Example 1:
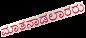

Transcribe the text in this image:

ಮಾತನಾಡಲಾರರು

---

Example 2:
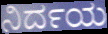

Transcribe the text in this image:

ನಿರ್ದಯ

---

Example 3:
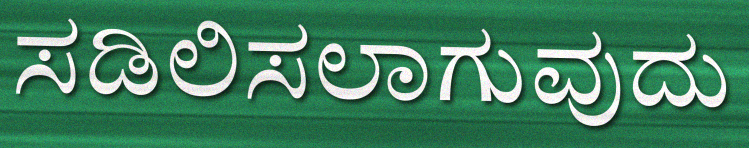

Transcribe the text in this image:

ಸಡಿಲಿಸಲಾಗುವುದು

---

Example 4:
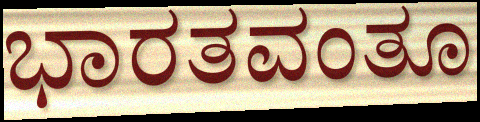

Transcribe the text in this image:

ಭಾರತವಂತೂ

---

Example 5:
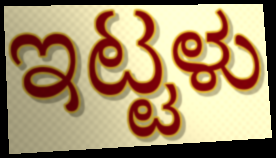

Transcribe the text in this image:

ಇಟ್ಟಳು